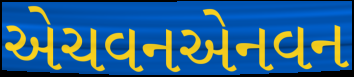
એચવનએનવન